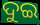
ଦୁଇ